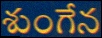
శుంగేన